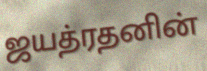
ஜயத்ரதனின்